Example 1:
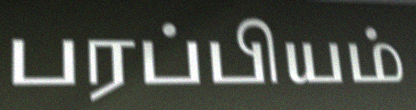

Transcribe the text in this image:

பரப்பியம்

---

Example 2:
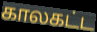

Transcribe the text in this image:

காலகட்ட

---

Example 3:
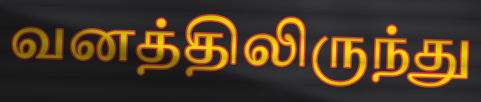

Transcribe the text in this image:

வனத்திலிருந்து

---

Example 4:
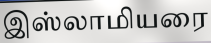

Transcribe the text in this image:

இஸ்லாமியரை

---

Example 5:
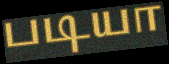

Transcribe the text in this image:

படியா